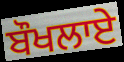
ਬੌਖਲਾਏ